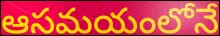
ఆసమయంలోనే